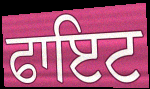
ਫਾਇਟ